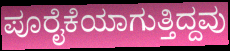
ಪೂರೈಕೆಯಾಗುತ್ತಿದ್ದವು